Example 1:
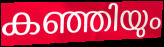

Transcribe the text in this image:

കഞ്ഞിയും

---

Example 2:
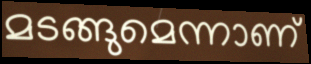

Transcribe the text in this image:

മടങ്ങുമെന്നാണ്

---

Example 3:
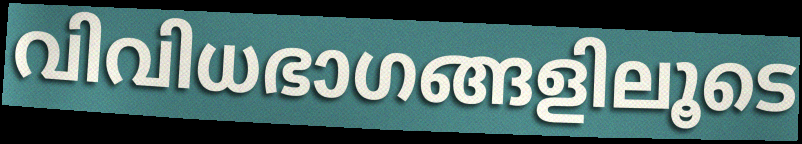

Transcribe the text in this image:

വിവിധഭാഗങ്ങളിലൂടെ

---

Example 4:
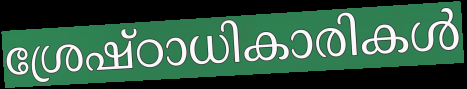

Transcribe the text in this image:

ശ്രേഷ്ഠാധികാരികൾ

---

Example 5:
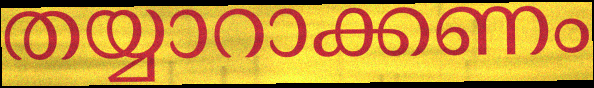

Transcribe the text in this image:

തയ്യാറാക്കണം